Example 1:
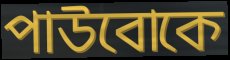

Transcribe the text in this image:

পাউবোকে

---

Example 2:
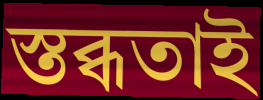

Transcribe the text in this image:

স্তব্ধতাই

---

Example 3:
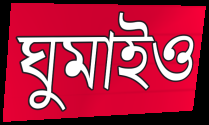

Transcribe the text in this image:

ঘুমাইও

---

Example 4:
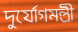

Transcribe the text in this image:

দুর্যোগমন্ত্রী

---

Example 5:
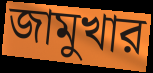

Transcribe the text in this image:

জামুখার